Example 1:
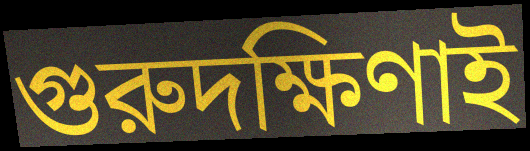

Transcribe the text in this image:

গুরুদক্ষিণাই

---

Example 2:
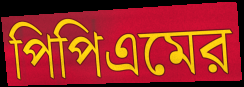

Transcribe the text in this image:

পিপিএমের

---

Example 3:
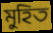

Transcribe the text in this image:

মুহিত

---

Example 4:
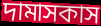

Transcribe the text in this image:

দামাসকাস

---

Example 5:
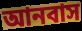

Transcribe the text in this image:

আনবাস